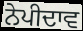
ਨੇਪੀਦਾਵ